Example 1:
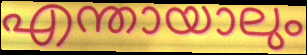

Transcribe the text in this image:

എന്തായാലും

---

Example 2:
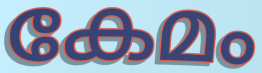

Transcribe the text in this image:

കേമം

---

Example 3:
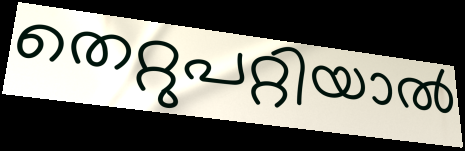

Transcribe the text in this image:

തെറ്റുപറ്റിയാൽ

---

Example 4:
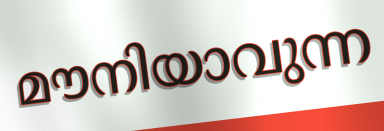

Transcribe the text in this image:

മൗനിയാവുന്ന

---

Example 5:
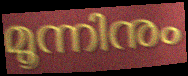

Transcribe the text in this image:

മൂന്നിനും